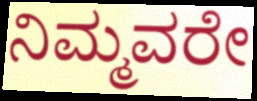
ನಿಮ್ಮವರೇ